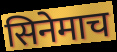
सिनेमाच